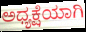
ಅಧ್ಯಕ್ಷೆಯಾಗಿ